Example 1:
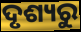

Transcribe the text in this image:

ଦୃଶ୍ୟରୁ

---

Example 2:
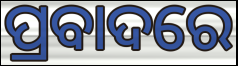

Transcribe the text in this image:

ପ୍ରବାଦରେ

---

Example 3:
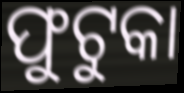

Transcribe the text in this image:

ଫୁଟୁକା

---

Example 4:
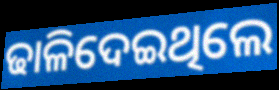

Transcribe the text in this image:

ଢାଳିଦେଇଥିଲେ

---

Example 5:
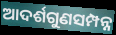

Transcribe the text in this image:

ଆଦର୍ଶଗୁଣସମ୍ପନ୍ନ